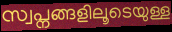
സ്വപ്നങ്ങളിലൂടെയുള്ള